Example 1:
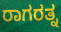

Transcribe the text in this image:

ರಾಗರತ್ನ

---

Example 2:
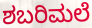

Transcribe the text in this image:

ಶಬರಿಮಲೆ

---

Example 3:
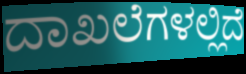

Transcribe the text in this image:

ದಾಖಲೆಗಳಲ್ಲಿದೆ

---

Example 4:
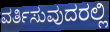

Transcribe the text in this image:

ವರ್ತಿಸುವುದರಲ್ಲಿ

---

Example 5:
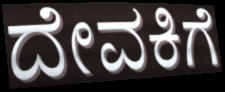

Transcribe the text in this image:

ದೇವಕಿಗೆ